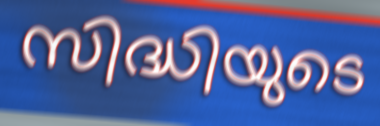
സിദ്ധിയുടെ